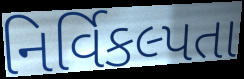
નિર્વિકલ્પતા